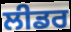
ਲੀਡਰ